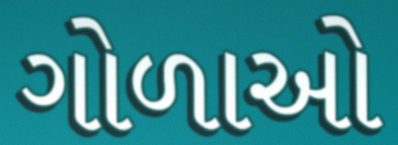
ગોળાઓ